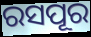
ରସପୂର